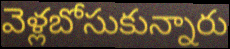
వెళ్లబోసుకున్నారు